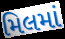
મિલમાં